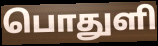
பொதுளி